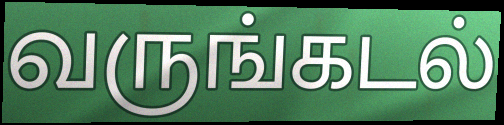
வருங்கடல்